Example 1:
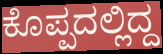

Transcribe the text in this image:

ಕೊಪ್ಪದಲ್ಲಿದ್ದ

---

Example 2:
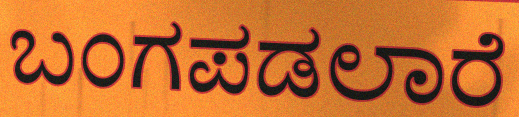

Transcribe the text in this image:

ಬಂಗಪಡಲಾರೆ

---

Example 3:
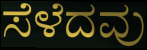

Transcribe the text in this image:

ಸೆಳೆದವು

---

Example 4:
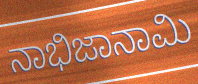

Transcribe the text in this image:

ನಾಭಿಜಾನಾಮಿ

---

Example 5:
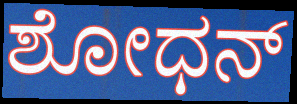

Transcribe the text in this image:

ಶೋಧನ್